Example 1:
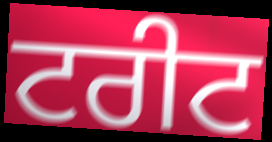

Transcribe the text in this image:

ਟਰੀਟ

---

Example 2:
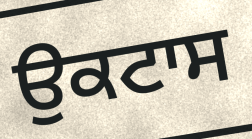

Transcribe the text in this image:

ਉਕਟਾਸ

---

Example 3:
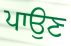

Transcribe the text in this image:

ਪਾਉਣ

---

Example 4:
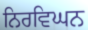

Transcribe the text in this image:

ਨਿਰਵਿਘਨ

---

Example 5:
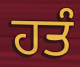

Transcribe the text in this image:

ਹਤੰ